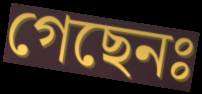
গেছেনঃ